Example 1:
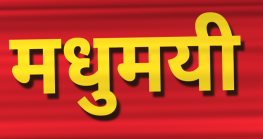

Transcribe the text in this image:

मधुमयी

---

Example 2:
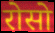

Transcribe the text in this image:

रोसो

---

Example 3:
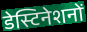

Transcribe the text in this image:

डेस्टिनेशनों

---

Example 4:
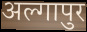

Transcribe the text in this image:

अल्गापुर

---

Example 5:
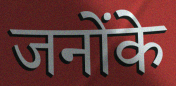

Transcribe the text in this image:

जनोंके